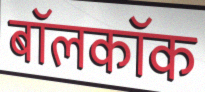
बॉलकॉक